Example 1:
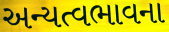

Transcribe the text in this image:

અન્યત્વભાવના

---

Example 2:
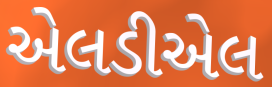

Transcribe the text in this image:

એલડીએલ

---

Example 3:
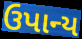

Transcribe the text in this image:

ઉપાન્ય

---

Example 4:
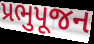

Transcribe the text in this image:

પ્રભુપૂજન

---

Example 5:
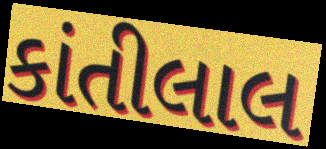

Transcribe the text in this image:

કાંતીલાલ